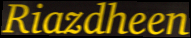
Riazdheen